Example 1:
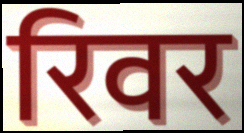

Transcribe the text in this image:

रिवर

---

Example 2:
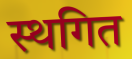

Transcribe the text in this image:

स्थगित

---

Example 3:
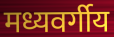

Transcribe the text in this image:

मध्यवर्गीय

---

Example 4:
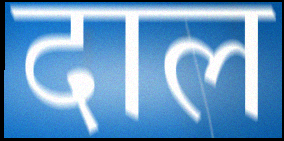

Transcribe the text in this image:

दाल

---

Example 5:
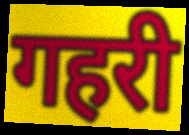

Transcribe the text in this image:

गहरी